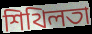
শিথিলতা